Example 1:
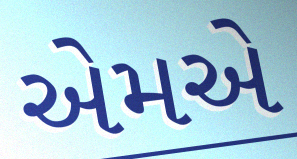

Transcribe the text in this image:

એમએ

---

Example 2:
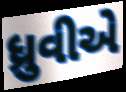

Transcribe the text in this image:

ધ્રુવીએ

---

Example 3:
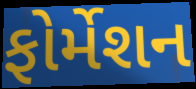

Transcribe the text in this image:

ફોર્મેશન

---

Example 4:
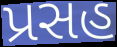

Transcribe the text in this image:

પ્રસહ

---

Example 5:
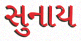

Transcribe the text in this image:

સુનાય